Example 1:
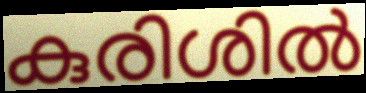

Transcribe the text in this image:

കുരിശിൽ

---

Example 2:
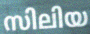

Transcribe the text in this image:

സിലിയ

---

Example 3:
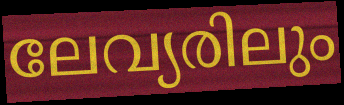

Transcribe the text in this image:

ലേവ്യരിലും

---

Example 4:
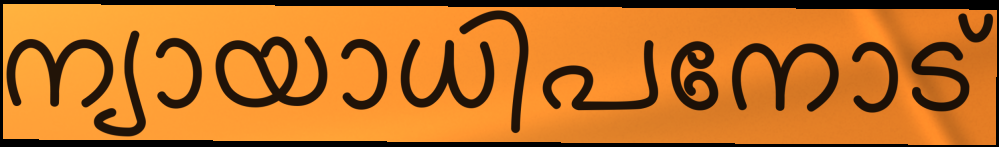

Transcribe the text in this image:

ന്യായാധിപനോട്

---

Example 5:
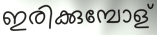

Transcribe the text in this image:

ഇരിക്കുമ്പോള്